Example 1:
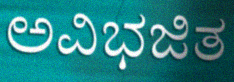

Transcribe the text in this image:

ಅವಿಭಜಿತ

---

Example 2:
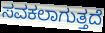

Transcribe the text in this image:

ಸವಕಲಾಗುತ್ತದೆ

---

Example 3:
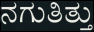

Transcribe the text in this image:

ನಗುತಿತ್ತು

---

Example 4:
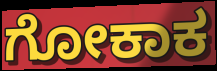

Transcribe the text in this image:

ಗೋಕಾಕ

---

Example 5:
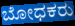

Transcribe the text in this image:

ಬೋಧಕರು